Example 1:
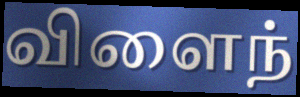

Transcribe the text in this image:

விளைந்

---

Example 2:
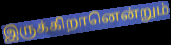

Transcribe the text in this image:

இருக்கிறானென்றும்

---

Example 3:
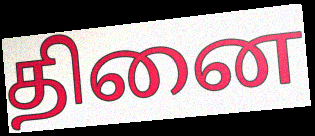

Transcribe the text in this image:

தினை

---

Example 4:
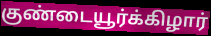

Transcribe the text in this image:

குண்டையூர்க்கிழார்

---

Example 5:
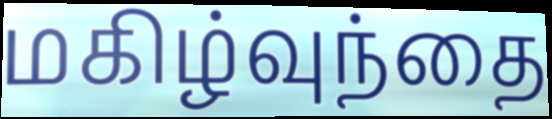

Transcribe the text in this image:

மகிழ்வுந்தை